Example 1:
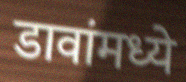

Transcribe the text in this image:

डावांमध्ये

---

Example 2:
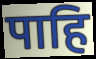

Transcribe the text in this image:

पाहि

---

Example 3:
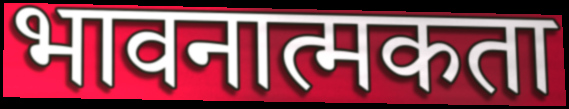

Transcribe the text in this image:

भावनात्मकता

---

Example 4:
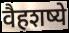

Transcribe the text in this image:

वैहशष्ये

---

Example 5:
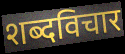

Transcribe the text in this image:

शब्दविचार